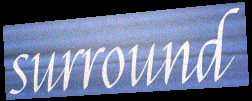
surround